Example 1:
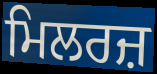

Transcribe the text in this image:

ਮਿਲਰਜ਼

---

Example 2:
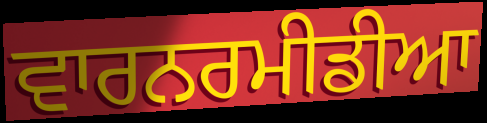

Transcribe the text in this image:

ਵਾਰਨਰਮੀਡੀਆ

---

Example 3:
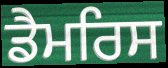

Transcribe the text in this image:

ਡੈਮਰਿਸ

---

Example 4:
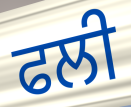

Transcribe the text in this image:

ਫਲੀ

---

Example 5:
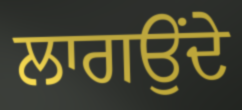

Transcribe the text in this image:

ਲਾਗਉਂਦੇ